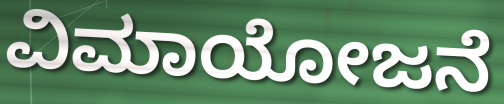
ವಿಮಾಯೋಜನೆ